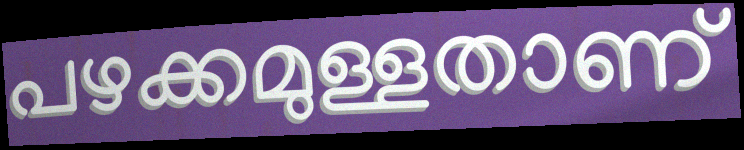
പഴക്കമുള്ളതാണ്